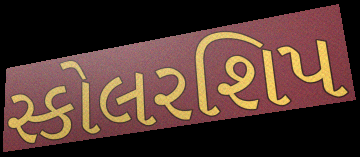
સ્કોલરશિપ